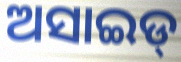
ଅସାଇଡ୍